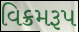
વિક્રમરૂપ